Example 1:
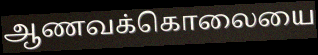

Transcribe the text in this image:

ஆணவக்கொலையை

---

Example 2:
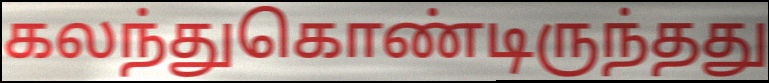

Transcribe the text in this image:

கலந்துகொண்டிருந்தது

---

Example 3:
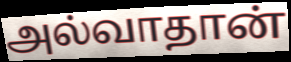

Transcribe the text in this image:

அல்வாதான்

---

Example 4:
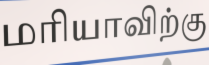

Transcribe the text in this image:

மரியாவிற்கு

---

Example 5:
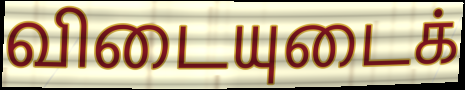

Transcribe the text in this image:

விடையுடைக்